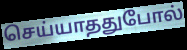
செய்யாததுபோல்